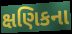
ક્ષણિકના